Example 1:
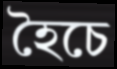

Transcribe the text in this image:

হৈচে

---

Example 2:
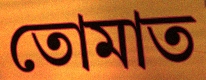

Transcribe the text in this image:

তোমাত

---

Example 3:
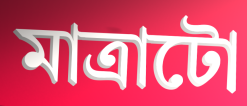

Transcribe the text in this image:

মাত্ৰাটো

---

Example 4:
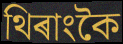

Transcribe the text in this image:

থিৰাংকৈ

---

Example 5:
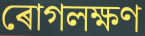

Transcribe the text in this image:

ৰোগলক্ষণ